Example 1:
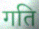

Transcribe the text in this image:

गति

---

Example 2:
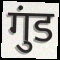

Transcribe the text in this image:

गुंड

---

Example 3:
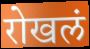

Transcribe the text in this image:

रोखलं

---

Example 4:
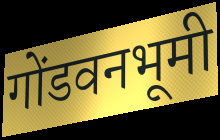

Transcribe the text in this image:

गोंडवनभूमी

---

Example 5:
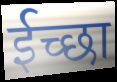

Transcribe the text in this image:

ईच्छा